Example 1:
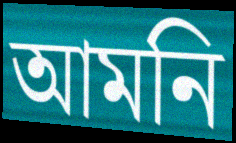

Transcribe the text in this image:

আমনি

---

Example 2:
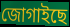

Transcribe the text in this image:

জোগাইছে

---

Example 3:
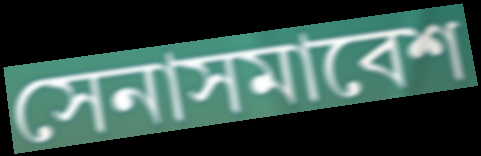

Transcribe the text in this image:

সেনাসমাবেশ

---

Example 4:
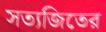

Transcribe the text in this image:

সত্যজিতের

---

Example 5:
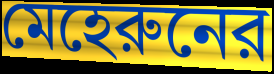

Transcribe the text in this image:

মেহেরুনের